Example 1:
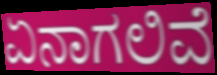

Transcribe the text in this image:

ಏನಾಗಲಿವೆ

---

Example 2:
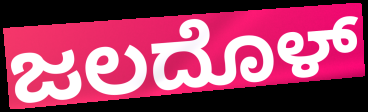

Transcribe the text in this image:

ಜಲದೊಳ್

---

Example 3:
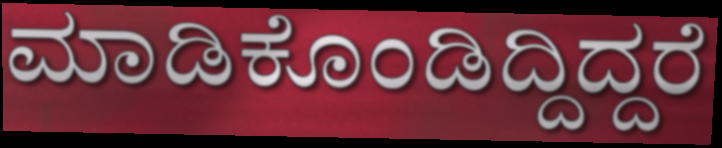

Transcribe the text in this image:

ಮಾಡಿಕೊಂಡಿದ್ದಿದ್ದರೆ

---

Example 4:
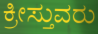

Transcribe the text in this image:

ಕ್ರೀಸ್ತುವರು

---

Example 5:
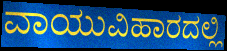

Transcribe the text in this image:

ವಾಯುವಿಹಾರದಲ್ಲಿ